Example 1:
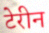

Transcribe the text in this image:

टेरीन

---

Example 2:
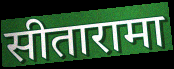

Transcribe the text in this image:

सीतारामा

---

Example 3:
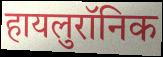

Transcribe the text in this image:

हायलुरॉनिक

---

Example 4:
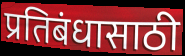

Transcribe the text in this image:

प्रतिबंधासाठी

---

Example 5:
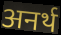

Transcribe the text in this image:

अनर्थ